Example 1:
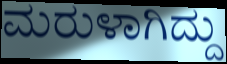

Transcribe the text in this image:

ಮರುಳಾಗಿದ್ದು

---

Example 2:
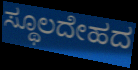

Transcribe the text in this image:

ಸ್ಥೂಲದೇಹದ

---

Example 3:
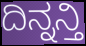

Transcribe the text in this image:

ದಿನ್ನನ್ತಿ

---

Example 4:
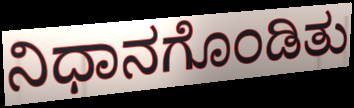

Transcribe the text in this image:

ನಿಧಾನಗೊಂಡಿತು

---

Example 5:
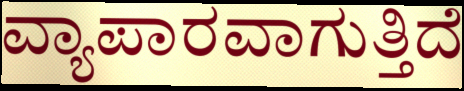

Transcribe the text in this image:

ವ್ಯಾಪಾರವಾಗುತ್ತಿದೆ